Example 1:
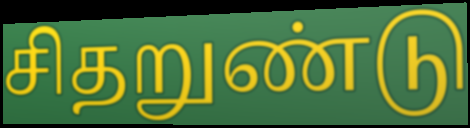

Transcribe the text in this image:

சிதறுண்டு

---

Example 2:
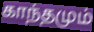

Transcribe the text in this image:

காந்தமும்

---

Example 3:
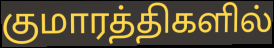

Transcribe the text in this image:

குமாரத்திகளில்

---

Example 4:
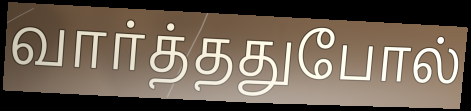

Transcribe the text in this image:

வார்த்ததுபோல்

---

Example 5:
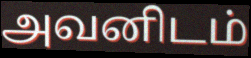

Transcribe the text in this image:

அவனிடம்